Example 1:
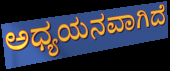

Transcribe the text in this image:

ಅಧ್ಯಯನವಾಗಿದೆ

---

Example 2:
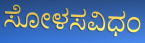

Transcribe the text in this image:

ಸೋಳಸವಿಧಂ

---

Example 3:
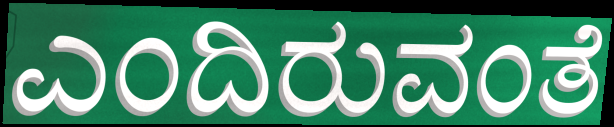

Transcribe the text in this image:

ಎಂದಿರುವಂತೆ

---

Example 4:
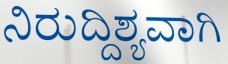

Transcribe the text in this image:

ನಿರುದ್ದಿಶ್ಯವಾಗಿ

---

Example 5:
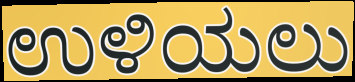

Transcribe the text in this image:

ಉಳಿಯಲು